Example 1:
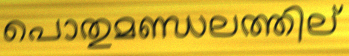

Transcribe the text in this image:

പൊതുമണ്ഡലത്തില്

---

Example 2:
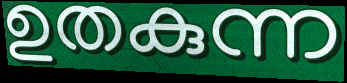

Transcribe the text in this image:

ഉതകുന്ന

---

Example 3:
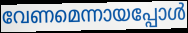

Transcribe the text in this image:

വേണമെന്നായപ്പോൾ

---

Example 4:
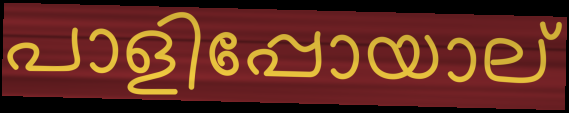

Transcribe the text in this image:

പാളിപ്പോയാല്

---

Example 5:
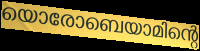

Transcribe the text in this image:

യൊരോബെയാമിന്റെ